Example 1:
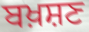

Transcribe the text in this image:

ਬਖ਼ਸ਼ਣ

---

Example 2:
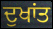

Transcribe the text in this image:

ਦੁਖਾਂਤ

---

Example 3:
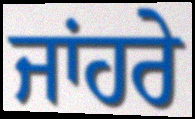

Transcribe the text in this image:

ਜਾਂਹਰੇ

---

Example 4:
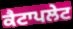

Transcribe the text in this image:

ਕੈਟਾਪਲੇਟ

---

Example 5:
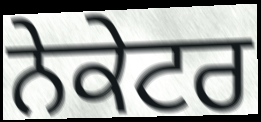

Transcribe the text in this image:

ਨੇਕੇਟਰ